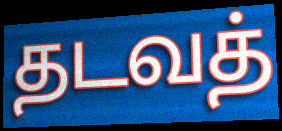
தடவத்